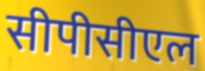
सीपीसीएल